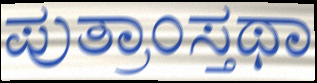
ಪುತ್ರಾಂಸ್ತಥಾ